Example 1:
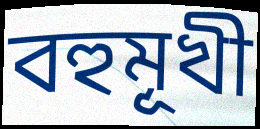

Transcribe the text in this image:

বহুমূখী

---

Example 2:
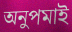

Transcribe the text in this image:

অনুপমাই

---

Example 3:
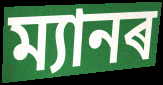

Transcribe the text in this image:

ম্যানৰ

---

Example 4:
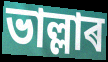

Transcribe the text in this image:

ভাল্লাৰ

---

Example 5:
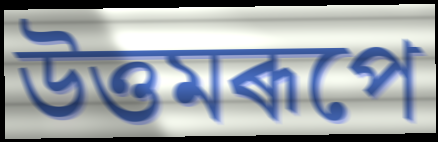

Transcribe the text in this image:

উত্তমৰূপে